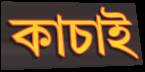
কাচাই